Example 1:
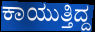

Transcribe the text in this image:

ಕಾಯುತ್ತಿದ್ದ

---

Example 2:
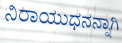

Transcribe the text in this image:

ನಿರಾಯುಧನನ್ನಾಗಿ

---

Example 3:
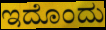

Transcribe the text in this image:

ಇದೊಂದು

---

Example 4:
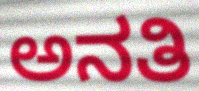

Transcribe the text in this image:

ಅನತಿ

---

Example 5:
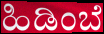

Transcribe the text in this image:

ಹಿಡಿಂಬೆ